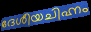
ദേശീയചിഹ്നം